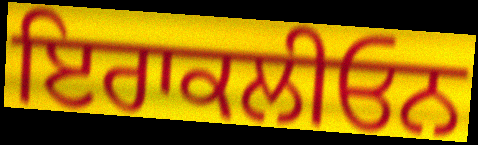
ਇਰਾਕਲੀਓਨ